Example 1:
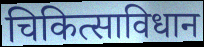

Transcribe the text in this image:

चिकित्साविधान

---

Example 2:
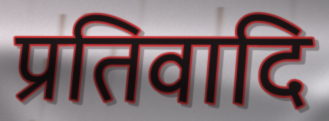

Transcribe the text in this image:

प्रतिवादि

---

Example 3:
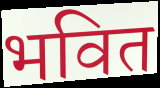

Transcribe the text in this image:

भवित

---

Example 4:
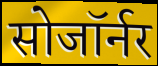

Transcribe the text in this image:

सोजॉर्नर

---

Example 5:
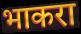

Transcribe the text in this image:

भाकरा